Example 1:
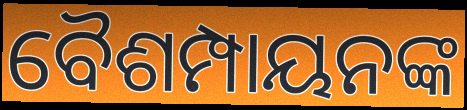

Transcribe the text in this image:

ବୈଶମ୍ପାୟନଙ୍କ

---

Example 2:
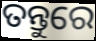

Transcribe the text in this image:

ତନ୍ତୁରେ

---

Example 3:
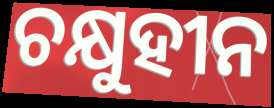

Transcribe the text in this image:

ଚକ୍ଷୁହୀନ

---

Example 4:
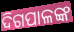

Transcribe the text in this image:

ଦିଗପାଳଙ୍କ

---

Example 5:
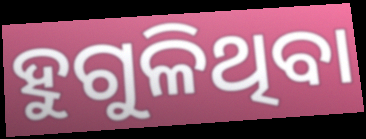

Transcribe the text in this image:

ହୁଗୁଳିଥିବା